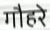
गौहरे